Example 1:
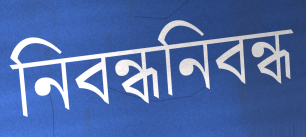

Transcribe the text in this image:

নিবন্ধনিবন্ধ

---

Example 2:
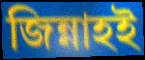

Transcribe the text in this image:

জিন্নাহই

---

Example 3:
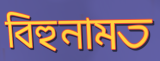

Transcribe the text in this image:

বিহুনামত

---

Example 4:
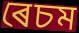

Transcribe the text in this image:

ৰেচম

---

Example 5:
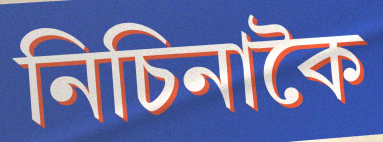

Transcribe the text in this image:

নিচিনাকৈ